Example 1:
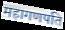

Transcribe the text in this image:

महागणपति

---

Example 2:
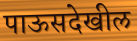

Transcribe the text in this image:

पाऊसदेखील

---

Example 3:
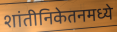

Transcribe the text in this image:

शांतीनिकेतनमध्ये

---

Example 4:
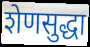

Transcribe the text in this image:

शेणसुद्धा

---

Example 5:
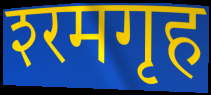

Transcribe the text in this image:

श्रमगृह